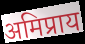
अमिप्राय